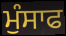
ਮੁੰਸਾਫ